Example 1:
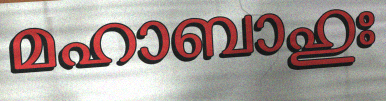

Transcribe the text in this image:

മഹാബാഹുഃ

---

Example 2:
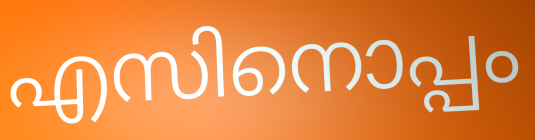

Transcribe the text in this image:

എസിനൊപ്പം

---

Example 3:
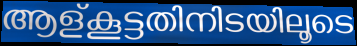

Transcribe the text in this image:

ആള്കൂട്ടതിനിടയിലൂടെ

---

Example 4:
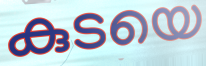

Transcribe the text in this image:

കുടയെ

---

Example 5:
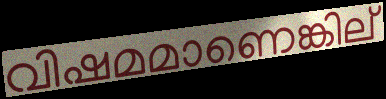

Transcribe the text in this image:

വിഷമമാണെങ്കില്